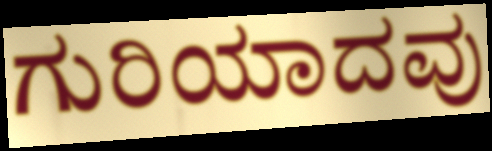
ಗುರಿಯಾದವು